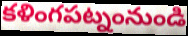
కళింగపట్నంనుండి